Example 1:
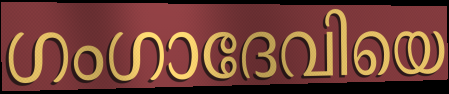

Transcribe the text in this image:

ഗംഗാദേവിയെ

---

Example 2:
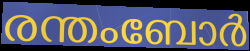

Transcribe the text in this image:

രന്തംബോർ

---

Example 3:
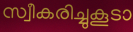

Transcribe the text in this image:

സ്വീകരിച്ചുകൂടാ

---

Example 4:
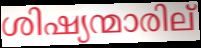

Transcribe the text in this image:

ശിഷ്യന്മാരില്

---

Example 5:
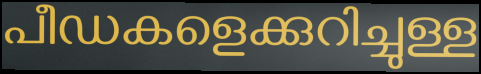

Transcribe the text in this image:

പീഡകളെക്കുറിച്ചുള്ള